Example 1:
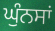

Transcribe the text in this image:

ਘੁੰਨਸਾਂ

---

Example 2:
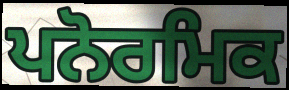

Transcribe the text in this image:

ਪਨੋਰਮਿਕ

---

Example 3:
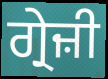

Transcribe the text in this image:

ਗ੍ਰੇਜ਼ੀ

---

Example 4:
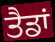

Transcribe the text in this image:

ਤੈਡਾਂ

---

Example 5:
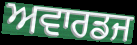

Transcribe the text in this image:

ਅਵਾਰਡਜ